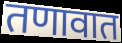
तणावात